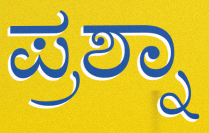
ಪ್ರಶ್ನಾ